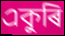
একুৰি